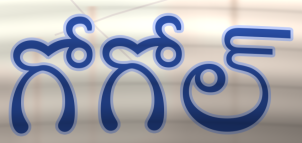
గోగోల్